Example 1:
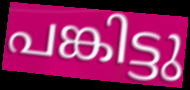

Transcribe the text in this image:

പങ്കിട്ടു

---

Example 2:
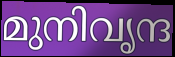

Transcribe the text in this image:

മുനിവൃന്ദ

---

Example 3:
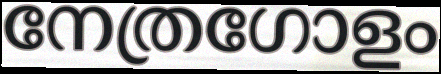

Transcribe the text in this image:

നേത്രഗോളം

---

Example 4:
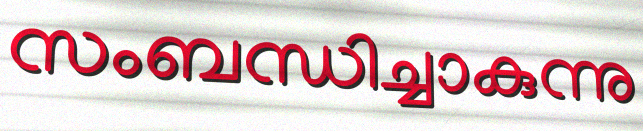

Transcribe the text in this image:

സംബന്ധിച്ചാകുന്നു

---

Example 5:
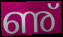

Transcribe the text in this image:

ണു്